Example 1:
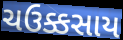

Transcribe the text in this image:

ચઉક્કસાય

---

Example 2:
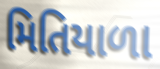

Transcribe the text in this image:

મિતિયાળા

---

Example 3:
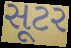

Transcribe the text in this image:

સૂટર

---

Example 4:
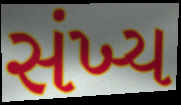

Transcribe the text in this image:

સંખ્ય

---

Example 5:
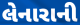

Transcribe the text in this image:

લેનારાની